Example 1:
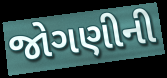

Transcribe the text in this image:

જોગણીની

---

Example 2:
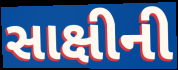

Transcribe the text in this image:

સાક્ષીની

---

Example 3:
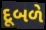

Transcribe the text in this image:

દૂબળે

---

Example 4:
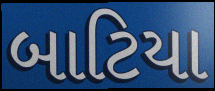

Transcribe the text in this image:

બાટિયા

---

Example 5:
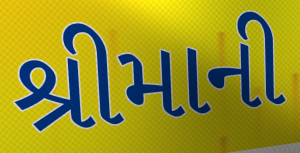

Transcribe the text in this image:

શ્રીમાની